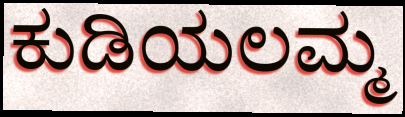
ಕುಡಿಯಲಮ್ಮ